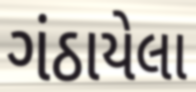
ગંઠાયેલા